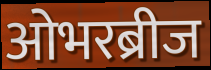
ओभरब्रीज